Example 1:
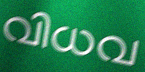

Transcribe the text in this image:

വിധവ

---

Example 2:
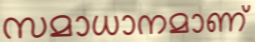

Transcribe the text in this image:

സമാധാനമാണ്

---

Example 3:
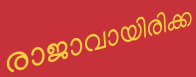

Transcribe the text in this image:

രാജാവായിരിക്ക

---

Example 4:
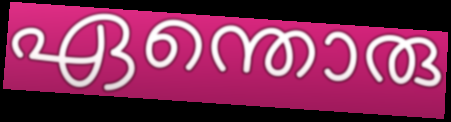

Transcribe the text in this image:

ഏന്തൊരു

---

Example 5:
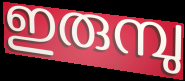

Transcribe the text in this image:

ഇരുമ്പു